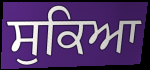
ਸੁਕਿਆ